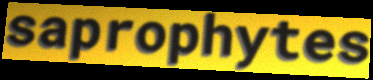
saprophytes